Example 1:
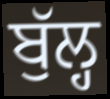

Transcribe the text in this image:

ਬੁੱਲ੍ਹ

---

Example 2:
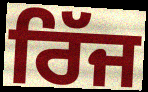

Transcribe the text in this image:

ਰਿੱਜ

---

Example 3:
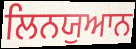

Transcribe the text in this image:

ਲਿਨਯੁਆਨ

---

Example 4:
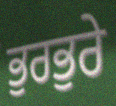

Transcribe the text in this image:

ਭੁਰਭੁਰੇ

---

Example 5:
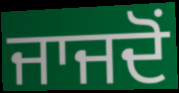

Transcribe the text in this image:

ਜਾਜਦੋਂ